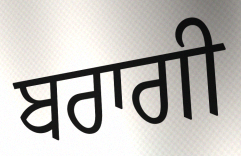
ਬਰਾਗੀ